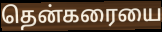
தென்கரையை